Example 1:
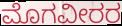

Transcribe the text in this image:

ಮೊಗವೀರರ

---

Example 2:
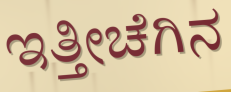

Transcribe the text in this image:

ಇತ್ತೀಚೆಗಿನ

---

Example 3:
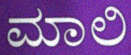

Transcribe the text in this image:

ಮಾಲಿ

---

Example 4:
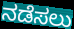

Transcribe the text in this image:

ನಡೆಸಲು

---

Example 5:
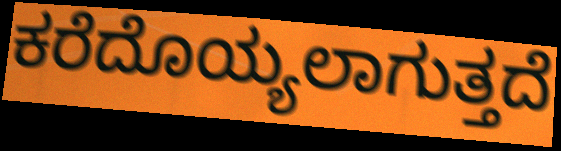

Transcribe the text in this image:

ಕರೆದೊಯ್ಯಲಾಗುತ್ತದೆ